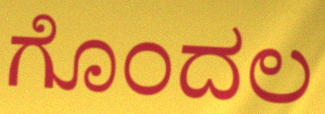
ಗೊಂದಲ